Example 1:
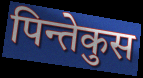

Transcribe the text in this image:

पिन्तेकुस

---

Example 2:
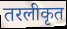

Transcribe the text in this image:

तरलीकृत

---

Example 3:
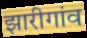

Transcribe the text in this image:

झारीगांव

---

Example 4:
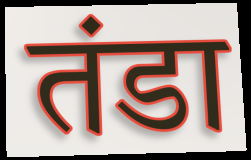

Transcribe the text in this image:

तंडा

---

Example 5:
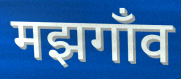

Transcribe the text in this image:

मझगाँव